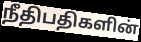
நீதிபதிகளின்